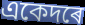
একেদৰে